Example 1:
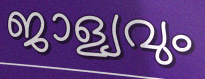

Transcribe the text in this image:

ജാള്യവും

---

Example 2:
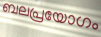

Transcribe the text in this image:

ബലപ്രയോഗം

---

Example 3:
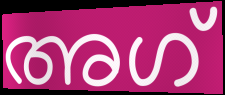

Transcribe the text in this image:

അഗ്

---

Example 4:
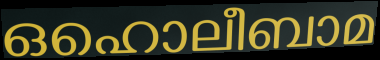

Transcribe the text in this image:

ഒഹൊലീബാമ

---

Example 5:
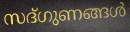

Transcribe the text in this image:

സദ്ഗുണങ്ങൾ